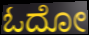
ಓದೋ